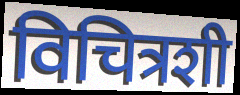
विचित्रशी